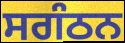
ਸਗੰਠਨ